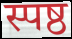
स्पष्ठ